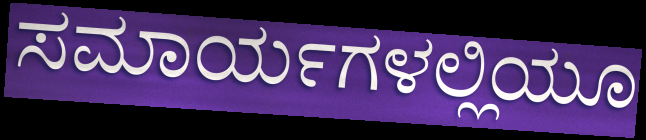
ಸಮಾರ್ಯಗಳಲ್ಲಿಯೂ